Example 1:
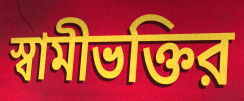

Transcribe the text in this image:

স্বামীভক্তির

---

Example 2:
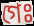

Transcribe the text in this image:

গেঃ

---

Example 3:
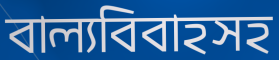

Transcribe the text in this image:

বাল্যবিবাহসহ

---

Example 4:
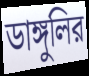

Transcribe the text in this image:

ডাঙ্গুলির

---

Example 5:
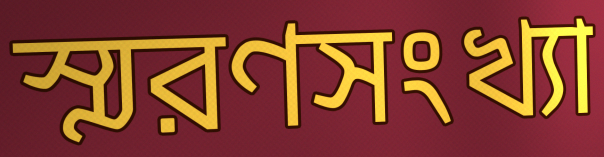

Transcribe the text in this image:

স্মরণসংখ্যা